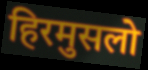
हिरमुसलो